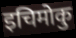
इचिमोकु